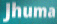
Jhuma